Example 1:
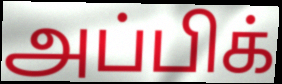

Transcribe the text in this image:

அப்பிக்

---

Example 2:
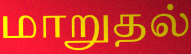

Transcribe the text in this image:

மாறுதல்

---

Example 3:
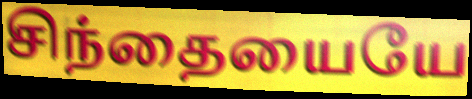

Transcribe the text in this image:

சிந்தையையே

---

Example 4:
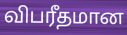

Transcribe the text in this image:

விபரீதமான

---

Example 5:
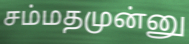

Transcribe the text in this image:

சம்மதமுன்னு